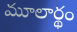
మూలార్థం